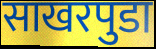
साखरपुडा